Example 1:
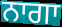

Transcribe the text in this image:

ਨਾਗਾ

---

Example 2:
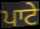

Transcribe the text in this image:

ਪਾਟੇ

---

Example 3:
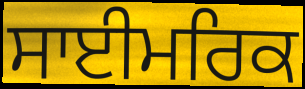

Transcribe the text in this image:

ਸਾਈਮਰਿਕ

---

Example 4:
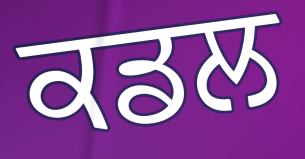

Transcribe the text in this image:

ਕਡਲ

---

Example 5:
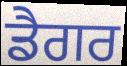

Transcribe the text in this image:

ਡੈਗਰ